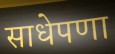
साधेपणा